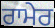
ਰਾਮੇਰ